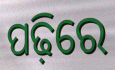
ପଢ଼ିରେ